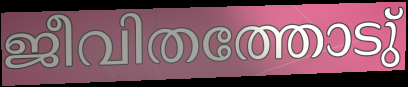
ജീവിതത്തോടു്